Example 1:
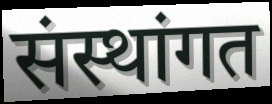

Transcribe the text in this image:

संस्थांगत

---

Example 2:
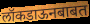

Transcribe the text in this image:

लॉकडाऊनबाबत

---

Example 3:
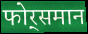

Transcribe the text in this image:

फोर्समान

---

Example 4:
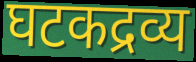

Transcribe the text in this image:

घटकद्रव्य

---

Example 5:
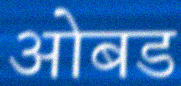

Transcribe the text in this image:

ओबड